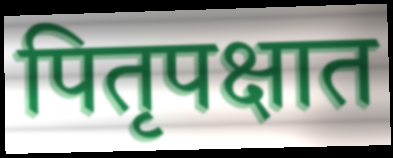
पितृपक्षात